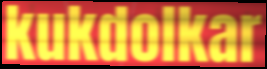
kukdolkar